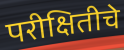
परीक्षितीचे